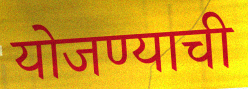
योजण्याची